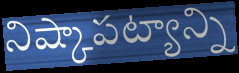
నిష్కాపట్యాన్ని